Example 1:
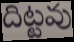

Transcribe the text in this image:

దిట్టవు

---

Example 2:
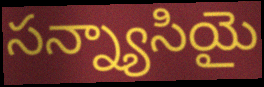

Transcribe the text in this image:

సన్న్యాసియై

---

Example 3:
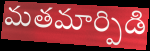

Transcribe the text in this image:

మతమార్పిడి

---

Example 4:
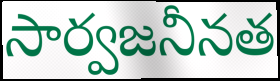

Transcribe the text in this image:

సార్వజనీనత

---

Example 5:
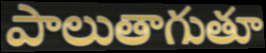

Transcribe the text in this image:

పాలుతాగుతూ